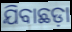
ଯିବାଛଡ଼ା